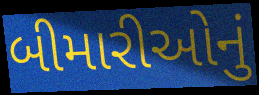
બીમારીઓનું